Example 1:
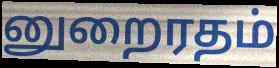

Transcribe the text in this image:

னுறைரதம்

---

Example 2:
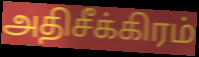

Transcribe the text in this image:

அதிசீக்கிரம்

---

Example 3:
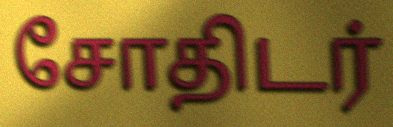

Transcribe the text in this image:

சோதிடர்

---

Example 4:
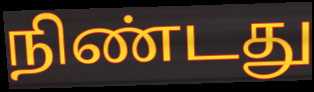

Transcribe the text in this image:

நிண்டது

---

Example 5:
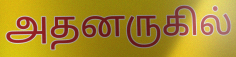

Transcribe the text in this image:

அதனருகில்